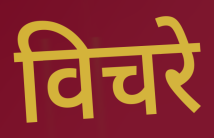
विचरे